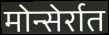
मोन्सेर्रात